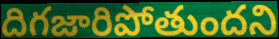
దిగజారిపోతుందని